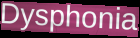
Dysphonia